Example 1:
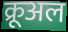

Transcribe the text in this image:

क्रूअल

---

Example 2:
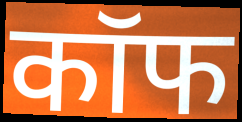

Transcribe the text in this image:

कॉफ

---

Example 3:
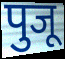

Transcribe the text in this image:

पुजू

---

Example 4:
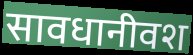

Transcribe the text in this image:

सावधानीवश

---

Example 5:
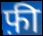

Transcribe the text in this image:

फ़ी